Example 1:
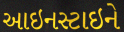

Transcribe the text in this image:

આઇનસ્ટાઇને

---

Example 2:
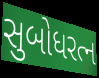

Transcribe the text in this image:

સુબોધરત્ન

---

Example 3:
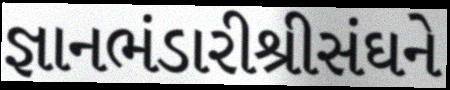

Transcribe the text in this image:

જ્ઞાનભંડારીશ્રીસંઘને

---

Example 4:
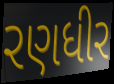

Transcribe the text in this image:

રણધીર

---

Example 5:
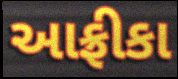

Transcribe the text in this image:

આફ્રીકા